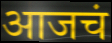
आजचं